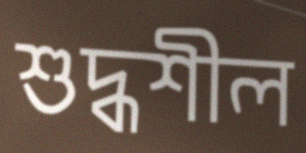
শুদ্ধশীল